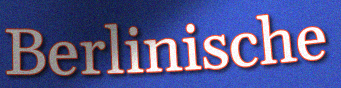
Berlinische